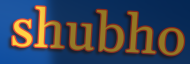
shubho